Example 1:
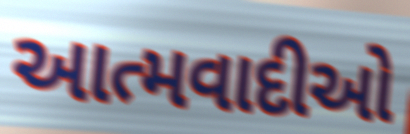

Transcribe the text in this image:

આત્મવાદીઓ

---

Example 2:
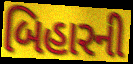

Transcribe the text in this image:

બિહારની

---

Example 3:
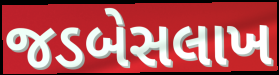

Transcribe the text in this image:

જડબેસલાખ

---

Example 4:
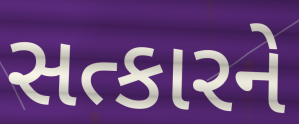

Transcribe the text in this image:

સત્કારને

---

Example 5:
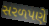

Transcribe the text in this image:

સરળપણે